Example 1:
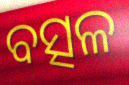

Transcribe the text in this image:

ବତ୍ସଳ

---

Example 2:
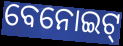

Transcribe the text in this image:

ବେନୋଇଟ୍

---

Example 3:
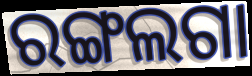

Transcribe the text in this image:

ରଙ୍ଗଲଗା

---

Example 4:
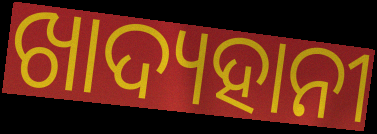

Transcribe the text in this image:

ଖାଦ୍ୟହାନୀ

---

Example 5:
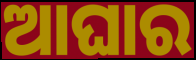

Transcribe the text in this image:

ଆଘାର